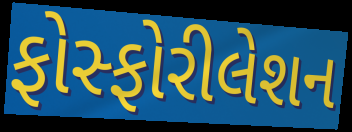
ફોસ્ફોરીલેશન